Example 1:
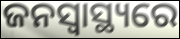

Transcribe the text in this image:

ଜନସ୍ଵାସ୍ଥ୍ୟରେ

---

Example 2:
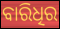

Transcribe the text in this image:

ବାରିଧିର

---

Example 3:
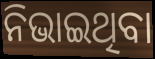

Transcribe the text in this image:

ନିଭାଇଥିବା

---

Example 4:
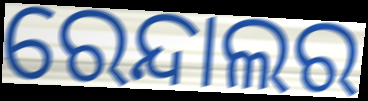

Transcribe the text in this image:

ରେନ୍ଦାଲର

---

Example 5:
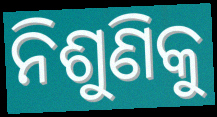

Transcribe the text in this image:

ନିଶୁଣିକୁ